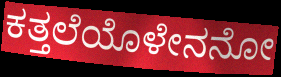
ಕತ್ತಲೆಯೊಳೇನನೋ